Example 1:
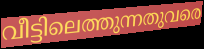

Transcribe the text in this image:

വീട്ടിലെത്തുന്നതുവരെ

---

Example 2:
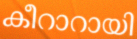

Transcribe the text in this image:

കീറാറായി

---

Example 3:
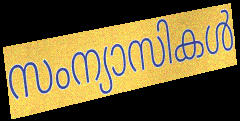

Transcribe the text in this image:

സംന്യാസികൾ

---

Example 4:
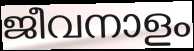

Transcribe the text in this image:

ജീവനാളം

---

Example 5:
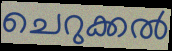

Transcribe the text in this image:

ചെറുക്കൽ